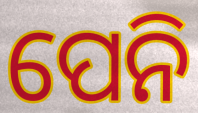
ପେନି